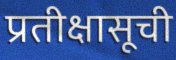
प्रतीक्षासूची